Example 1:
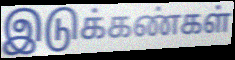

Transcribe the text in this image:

இடுக்கண்கள்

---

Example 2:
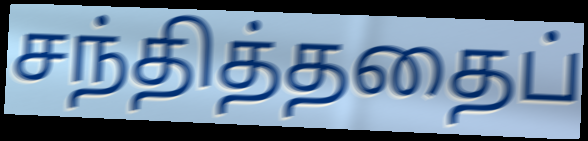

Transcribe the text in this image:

சந்தித்ததைப்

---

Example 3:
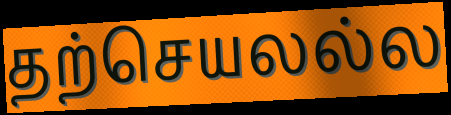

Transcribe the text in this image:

தற்செயலல்ல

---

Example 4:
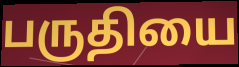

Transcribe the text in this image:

பருதியை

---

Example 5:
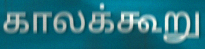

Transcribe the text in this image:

காலக்கூறு